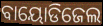
ବାୟୋଡିଜେଲ